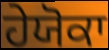
ਹੇਯੋਕਾ